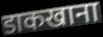
डाकखाना